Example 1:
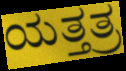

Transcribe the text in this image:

ಯತ್ತತ್ರ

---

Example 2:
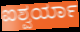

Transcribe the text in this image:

ಐಶ್ವರ್ಯಾ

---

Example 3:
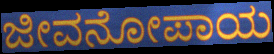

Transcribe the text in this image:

ಜೀವನೋಪಾಯ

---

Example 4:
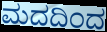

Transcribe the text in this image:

ಮದದಿಂದ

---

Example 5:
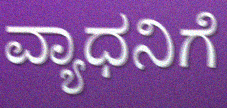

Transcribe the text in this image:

ವ್ಯಾಧನಿಗೆ